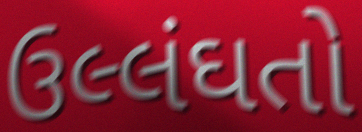
ઉલ્લંઘતો